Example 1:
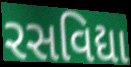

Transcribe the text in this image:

રસવિદ્યા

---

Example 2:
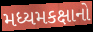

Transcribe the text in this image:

મધ્યમકક્ષાનો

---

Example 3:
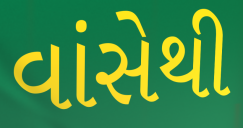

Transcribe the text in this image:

વાંસેથી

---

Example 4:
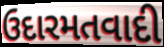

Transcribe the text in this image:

ઉદારમતવાદી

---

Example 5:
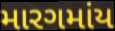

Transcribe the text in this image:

મારગમાંય